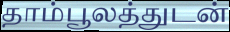
தாம்பூலத்துடன்